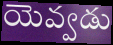
యెవ్వడు